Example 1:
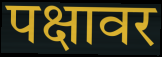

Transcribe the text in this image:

पक्षावर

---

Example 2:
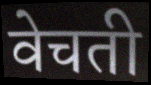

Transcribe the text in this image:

वेचती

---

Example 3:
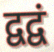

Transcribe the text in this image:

द्वद्वं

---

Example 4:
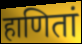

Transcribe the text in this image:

हाणितां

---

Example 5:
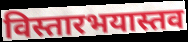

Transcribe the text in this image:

विस्तारभयास्तव